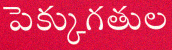
పెక్కుగతుల